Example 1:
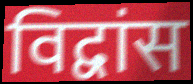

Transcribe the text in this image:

विद्वांस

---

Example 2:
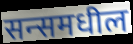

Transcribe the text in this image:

सन्समधील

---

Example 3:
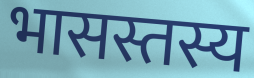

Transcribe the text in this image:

भासस्तस्य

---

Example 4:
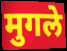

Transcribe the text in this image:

मुगले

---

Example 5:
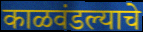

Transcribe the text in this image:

काळवंडल्याचे